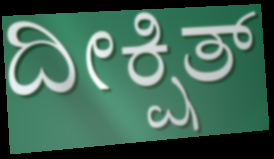
ದೀಕ್ಷಿತ್